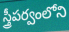
స్త్రీపర్వంలోని